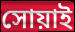
সোয়াই